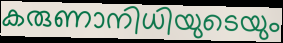
കരുണാനിധിയുടെയും